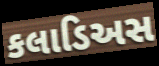
કલાડિઅસ